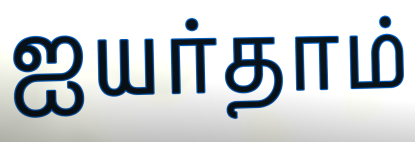
ஐயர்தாம்